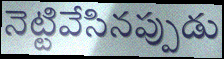
నెట్టివేసినప్పుడు